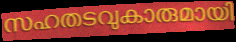
സഹതടവുകാരുമായി